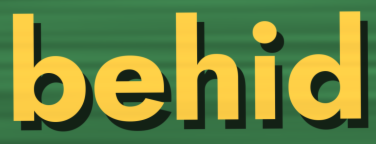
behid